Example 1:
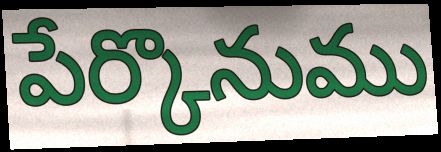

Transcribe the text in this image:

పేర్కొనుము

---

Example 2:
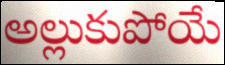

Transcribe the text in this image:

అల్లుకుపోయే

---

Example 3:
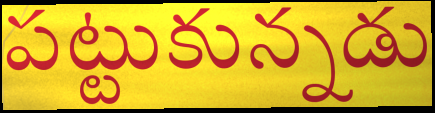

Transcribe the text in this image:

పట్టుకున్నడు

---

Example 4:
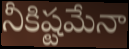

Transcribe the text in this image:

నీకిష్టమేనా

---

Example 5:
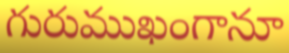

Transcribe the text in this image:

గురుముఖంగానూ